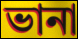
ভানা